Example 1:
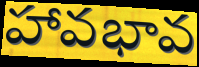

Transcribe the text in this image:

హావభావ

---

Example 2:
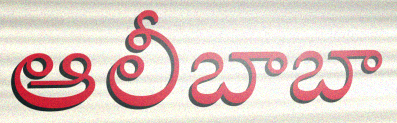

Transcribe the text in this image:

ఆలీబాబా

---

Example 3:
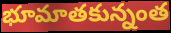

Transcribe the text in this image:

భూమాతకున్నంత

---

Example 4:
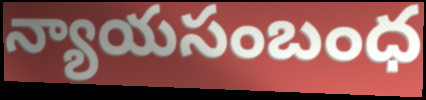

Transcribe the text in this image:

న్యాయసంబంధ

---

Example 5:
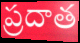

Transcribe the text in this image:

ప్రదాత